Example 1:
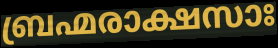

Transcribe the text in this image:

ബ്രഹ്മരാക്ഷസാഃ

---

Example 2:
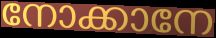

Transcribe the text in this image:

നോക്കാനേ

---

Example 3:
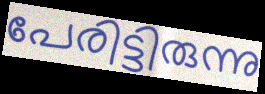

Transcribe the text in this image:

പേരിട്ടിരുന്നു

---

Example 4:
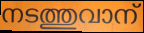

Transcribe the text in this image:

നടത്തുവാന്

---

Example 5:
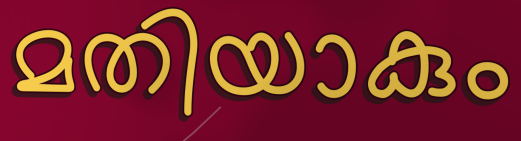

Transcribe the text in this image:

മതിയാകും